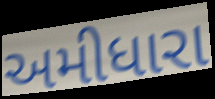
અમીધારા